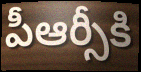
పీఆర్సీకి